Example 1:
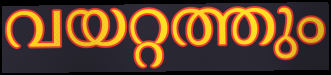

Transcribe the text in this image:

വയറ്റത്തും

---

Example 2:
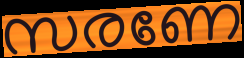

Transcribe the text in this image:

സരണേ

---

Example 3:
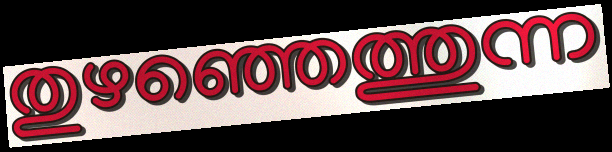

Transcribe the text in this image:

തുഴഞ്ഞെത്തുന്ന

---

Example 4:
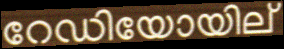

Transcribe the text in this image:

റേഡിയോയില്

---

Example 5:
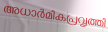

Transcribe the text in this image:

അധാർമികപ്രവൃത്തി